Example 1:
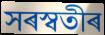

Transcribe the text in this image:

সৰস্বতীৰ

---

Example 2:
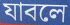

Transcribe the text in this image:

যাবলে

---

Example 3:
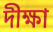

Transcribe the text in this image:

দীক্ষা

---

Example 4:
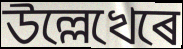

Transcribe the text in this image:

উল্লেখেৰে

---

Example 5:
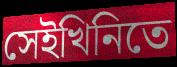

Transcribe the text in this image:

সেইখিনিতে